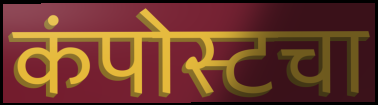
कंपोस्टचा